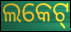
ଲକେଟ୍